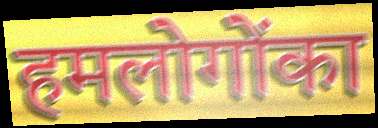
हमलोगोंका